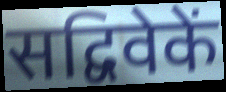
सद्विवेकें